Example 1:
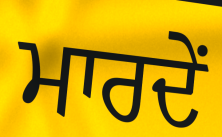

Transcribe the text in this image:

ਮਾਰਦੇਂ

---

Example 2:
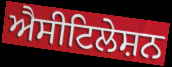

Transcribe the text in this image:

ਐਸੀਟਿਲੇਸ਼ਨ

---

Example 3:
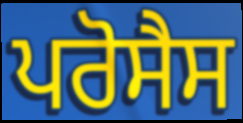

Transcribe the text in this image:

ਪਰੋਸੈਸ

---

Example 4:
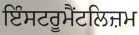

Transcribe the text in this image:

ਇੰਸਟਰੂਮੈਂਟਲਿਜ਼ਮ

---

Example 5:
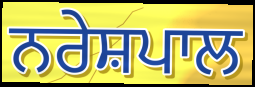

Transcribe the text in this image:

ਨਰੇਸ਼ਪਾਲ